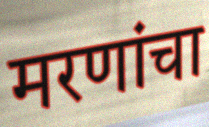
मरणांचा